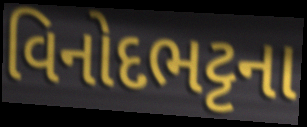
વિનોદભટ્ટના